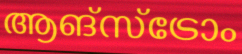
ആങ്സ്ട്രോം